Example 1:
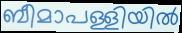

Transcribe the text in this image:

ബീമാപള്ളിയിൽ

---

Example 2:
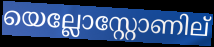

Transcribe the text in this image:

യെല്ലോസ്റ്റോണില്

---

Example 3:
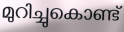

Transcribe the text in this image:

മുറിച്ചുകൊണ്ട്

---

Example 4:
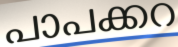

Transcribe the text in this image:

പാപക്കറ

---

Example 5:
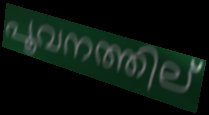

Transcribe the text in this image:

പൂവനത്തില്